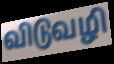
விடுவழி